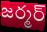
జర్మర్